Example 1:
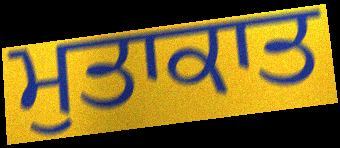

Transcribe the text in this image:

ਮੁਤਾਕਾਤ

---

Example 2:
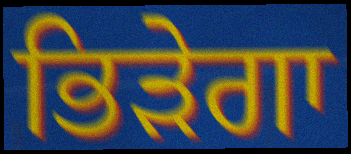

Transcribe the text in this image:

ਭਿੜੇਗਾ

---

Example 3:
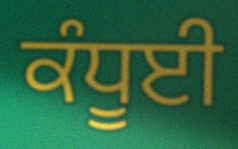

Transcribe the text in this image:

ਕੰਧੂਈ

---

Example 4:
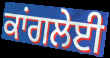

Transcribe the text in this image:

ਕਾਂਗਲੇਈ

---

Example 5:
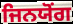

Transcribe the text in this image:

ਜਿਨਯੋਂਗ